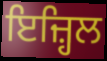
ਇਜ਼੍ਹਿਲ